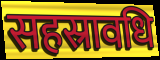
सहस्रावधि